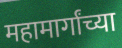
महामार्गांच्या